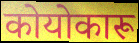
कोयोकारू